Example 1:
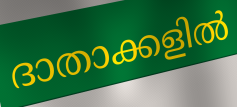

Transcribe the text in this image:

ദാതാക്കളിൽ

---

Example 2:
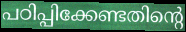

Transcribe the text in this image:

പഠിപ്പിക്കേണ്ടതിന്റെ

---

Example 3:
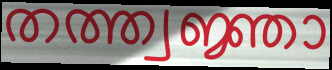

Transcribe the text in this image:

തത്ത്വജ്ഞാ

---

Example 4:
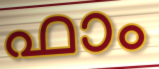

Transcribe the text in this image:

ഫാം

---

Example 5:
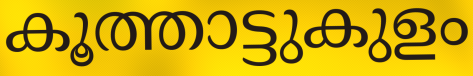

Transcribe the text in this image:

കൂത്താട്ടുകുളം